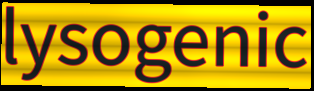
lysogenic